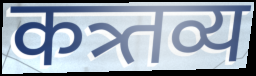
कत्र्तव्य